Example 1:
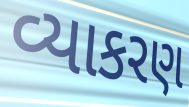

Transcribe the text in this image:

વ્યાકરણ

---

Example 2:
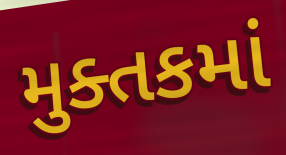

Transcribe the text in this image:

મુક્તકમાં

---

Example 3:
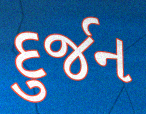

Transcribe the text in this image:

દુર્જન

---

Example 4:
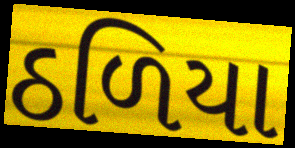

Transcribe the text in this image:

ઠળિયા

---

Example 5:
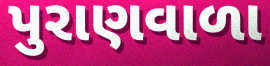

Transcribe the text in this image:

પુરાણવાળા